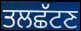
ਤਲਛੱਟਣ